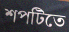
শপটিতে